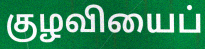
குழவியைப்